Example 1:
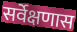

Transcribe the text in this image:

सर्वेक्षणास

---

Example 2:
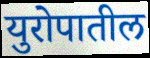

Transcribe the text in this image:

युरोपातील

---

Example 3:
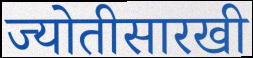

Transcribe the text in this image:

ज्योतीसारखी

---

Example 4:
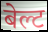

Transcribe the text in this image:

बेल्ट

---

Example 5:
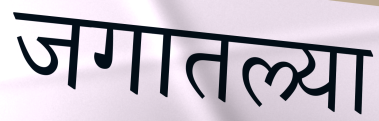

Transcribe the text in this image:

जगातल्या